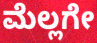
ಮೆಲ್ಲಗೇ